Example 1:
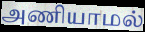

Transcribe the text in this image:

அணியாமல்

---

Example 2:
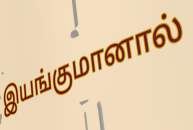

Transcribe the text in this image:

இயங்குமானால்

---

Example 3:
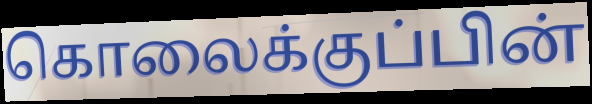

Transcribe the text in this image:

கொலைக்குப்பின்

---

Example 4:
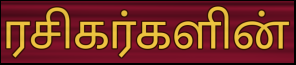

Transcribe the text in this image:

ரசிகர்களின்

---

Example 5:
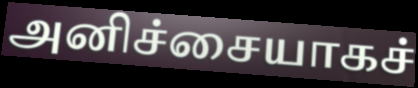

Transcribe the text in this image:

அனிச்சையாகச்